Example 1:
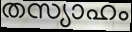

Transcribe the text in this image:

തസ്യാഹം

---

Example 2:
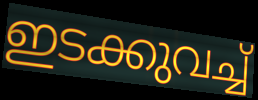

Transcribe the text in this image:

ഇടക്കുവച്ച്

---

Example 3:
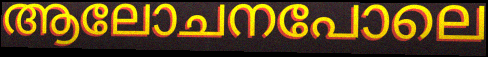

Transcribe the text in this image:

ആലോചനപോലെ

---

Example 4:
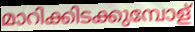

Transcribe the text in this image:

മാറിക്കിടക്കുമ്പോള്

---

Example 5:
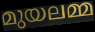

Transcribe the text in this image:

മുയലമ്മ